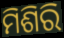
ମିଶିରି